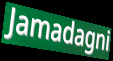
Jamadagni